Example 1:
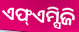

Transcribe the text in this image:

ଏଫ୍ଏମ୍ସିଜି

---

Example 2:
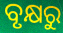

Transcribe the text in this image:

ବୃକ୍ଷରୁ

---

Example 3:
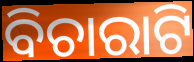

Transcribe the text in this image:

ବିଚାରାଟି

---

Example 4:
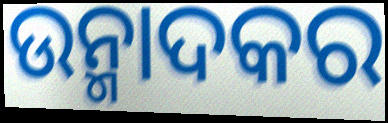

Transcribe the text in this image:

ଉନ୍ମାଦକର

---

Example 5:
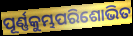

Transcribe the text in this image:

ପୂର୍ଣ୍ଣକୁମ୍ଭପରିଶୋଭିତ